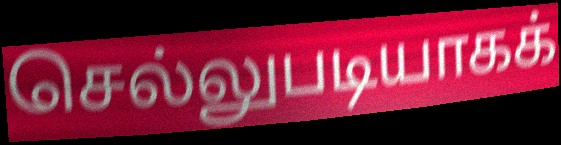
செல்லுபடியாகக்